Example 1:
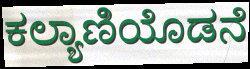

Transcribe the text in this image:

ಕಲ್ಯಾಣಿಯೊಡನೆ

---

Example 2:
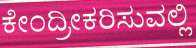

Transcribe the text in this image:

ಕೇಂದ್ರೀಕರಿಸುವಲ್ಲಿ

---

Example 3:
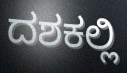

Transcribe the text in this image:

ದಶಕಲ್ಲಿ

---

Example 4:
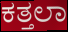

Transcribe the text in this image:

ಕತ್ತಲಾ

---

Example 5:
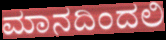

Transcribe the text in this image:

ಮಾನದಿಂದಲಿ